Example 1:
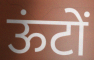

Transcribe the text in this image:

ऊंटों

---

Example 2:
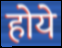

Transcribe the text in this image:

होये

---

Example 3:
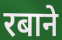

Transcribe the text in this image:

रबाने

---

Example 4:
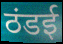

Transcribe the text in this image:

ठंडई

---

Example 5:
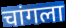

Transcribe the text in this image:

चांगला